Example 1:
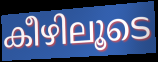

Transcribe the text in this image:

കീഴിലൂടെ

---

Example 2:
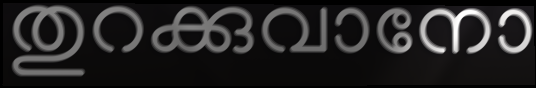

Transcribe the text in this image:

തുറക്കുവാനോ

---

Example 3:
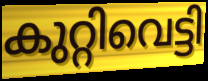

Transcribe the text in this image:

കുറ്റിവെട്ടി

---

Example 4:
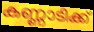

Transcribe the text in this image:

കണ്ണാടിക്ക്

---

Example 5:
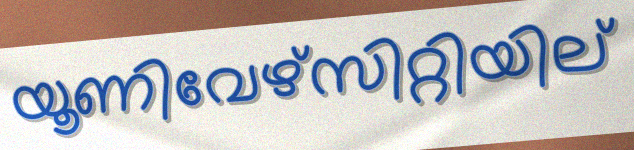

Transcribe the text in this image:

യൂണിവേഴ്സിറ്റിയില്